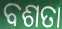
ବଶତା